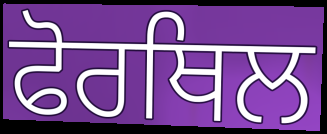
ਫੋਰਥਿਲ